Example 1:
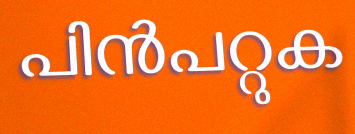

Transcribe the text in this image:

പിൻപറ്റുക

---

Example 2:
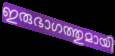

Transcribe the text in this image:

ഇരുഭാഗത്തുമായി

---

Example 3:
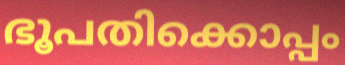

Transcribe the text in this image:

ഭൂപതിക്കൊപ്പം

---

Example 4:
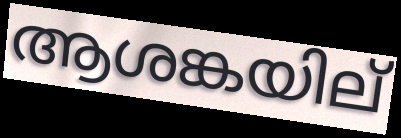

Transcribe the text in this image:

ആശങ്കയില്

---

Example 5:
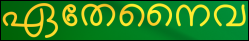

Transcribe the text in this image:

ഏതേനൈവ